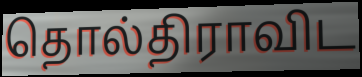
தொல்திராவிட